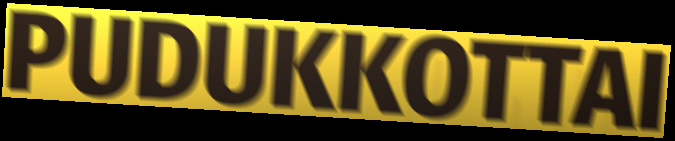
PUDUKKOTTAI